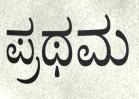
ಪ್ರಥಮ